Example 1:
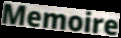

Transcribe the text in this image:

Memoire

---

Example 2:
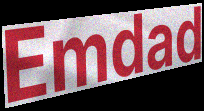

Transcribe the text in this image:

Emdad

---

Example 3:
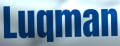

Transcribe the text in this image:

Luqman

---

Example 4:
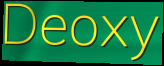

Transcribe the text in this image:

Deoxy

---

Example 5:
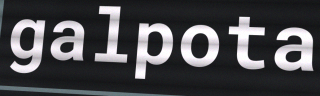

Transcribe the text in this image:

galpota